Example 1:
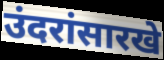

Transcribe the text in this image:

उंदरांसारखे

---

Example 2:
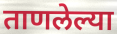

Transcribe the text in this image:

ताणलेल्या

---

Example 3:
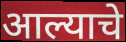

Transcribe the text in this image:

आल्याचे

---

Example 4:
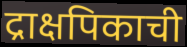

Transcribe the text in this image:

द्राक्षपिकाची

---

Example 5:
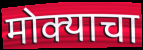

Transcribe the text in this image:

मोक्याचा